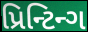
પ્રિન્ટિન્ગ